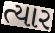
ત્‍યાર